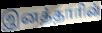
இனத்தாரின்